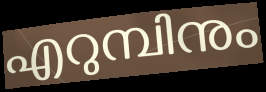
എറുമ്പിനും